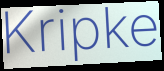
Kripke